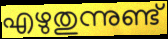
എഴുതുന്നുണ്ട്